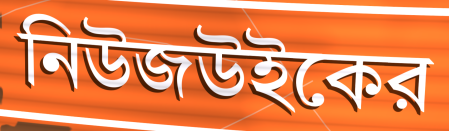
নিউজউইকের